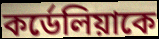
কর্ডেলিয়াকে